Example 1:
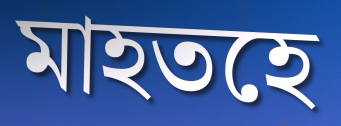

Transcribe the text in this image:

মাহতহে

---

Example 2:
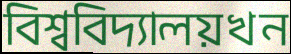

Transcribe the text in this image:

বিশ্ববিদ্যালয়খন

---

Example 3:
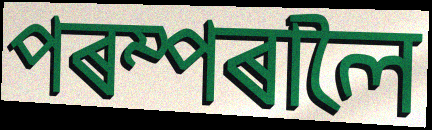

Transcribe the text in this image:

পৰম্পৰালৈ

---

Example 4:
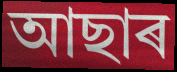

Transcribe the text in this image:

আছাৰ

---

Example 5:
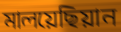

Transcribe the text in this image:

মালয়েছিয়ান